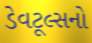
ડેવટૂલ્સનો